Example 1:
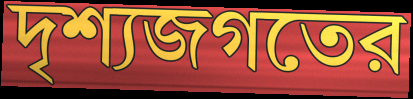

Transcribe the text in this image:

দৃশ্যজগতের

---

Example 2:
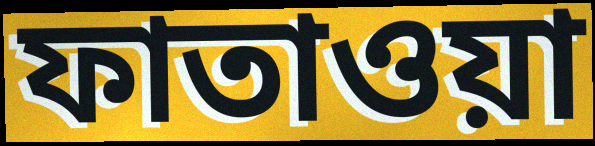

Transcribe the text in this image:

ফাতাওয়া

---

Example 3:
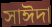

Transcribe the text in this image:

সাঈদা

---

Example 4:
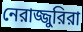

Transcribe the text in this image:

নেরাজ্জুরিরা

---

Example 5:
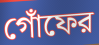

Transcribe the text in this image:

গোঁফের